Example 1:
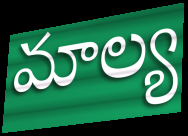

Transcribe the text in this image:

మాల్య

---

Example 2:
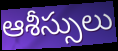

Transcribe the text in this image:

ఆశీస్సులు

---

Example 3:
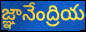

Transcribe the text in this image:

జ్ఞానేంద్రియ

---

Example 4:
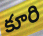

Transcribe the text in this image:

కూరి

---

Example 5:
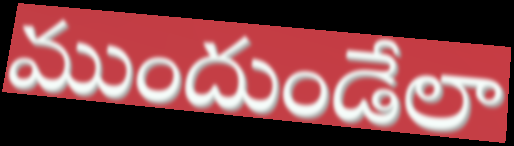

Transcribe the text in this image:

ముందుండేలా